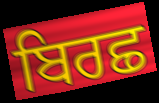
ਬਿਰਛ